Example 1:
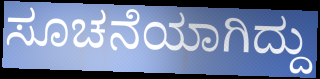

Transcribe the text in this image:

ಸೂಚನೆಯಾಗಿದ್ದು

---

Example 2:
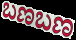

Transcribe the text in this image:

ಬಣಬಣ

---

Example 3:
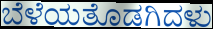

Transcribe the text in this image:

ಬೆಳೆಯತೊಡಗಿದಳು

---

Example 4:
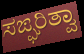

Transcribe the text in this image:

ಸಙ್ಘರಿತ್ವಾ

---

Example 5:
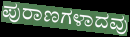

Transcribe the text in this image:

ಪುರಾಣಗಳಾದವು